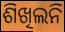
ଶିଖିଲନି